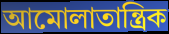
আমোলাতান্ত্ৰিক